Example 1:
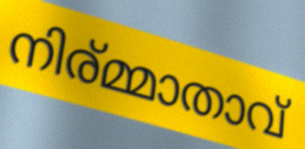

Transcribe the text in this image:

നിര്മ്മാതാവ്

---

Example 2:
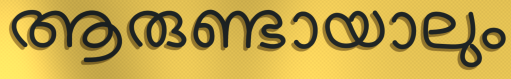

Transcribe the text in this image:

ആരുണ്ടായാലും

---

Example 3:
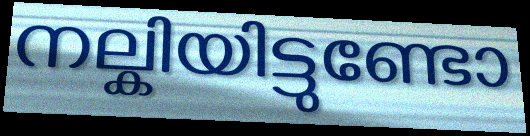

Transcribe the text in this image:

നല്കിയിട്ടുണ്ടോ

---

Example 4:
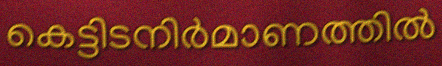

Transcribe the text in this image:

കെട്ടിടനിർമാണത്തിൽ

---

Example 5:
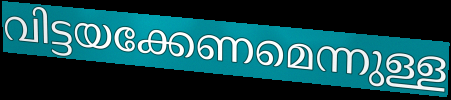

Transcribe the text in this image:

വിട്ടയക്കേണമെന്നുള്ള